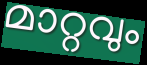
മാറ്റവും